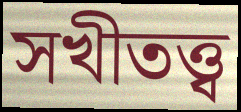
সখীতত্ত্ব